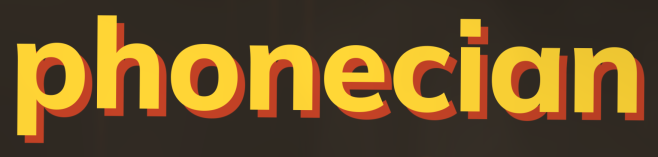
phonecian